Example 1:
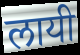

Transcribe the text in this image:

लायी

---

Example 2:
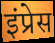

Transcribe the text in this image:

इंप्रेस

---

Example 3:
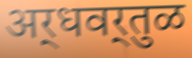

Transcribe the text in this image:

अर्धवर्तुळ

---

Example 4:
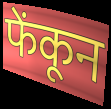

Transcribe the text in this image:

फेंकून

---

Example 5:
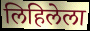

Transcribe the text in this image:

लिहिलेला